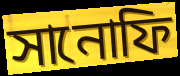
সানোফি